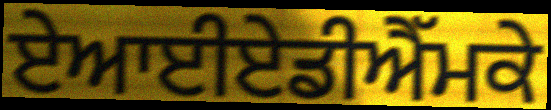
ਏਆਈਏਡੀਐੱਮਕੇ